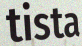
tista